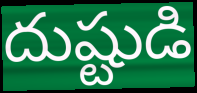
దుష్టుడి